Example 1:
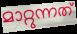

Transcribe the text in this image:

മാറ്റുന്നത്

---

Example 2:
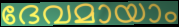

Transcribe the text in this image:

ദേവമായാം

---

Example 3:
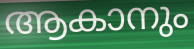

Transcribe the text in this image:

ആകാനും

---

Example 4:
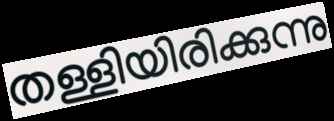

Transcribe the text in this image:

തള്ളിയിരിക്കുന്നു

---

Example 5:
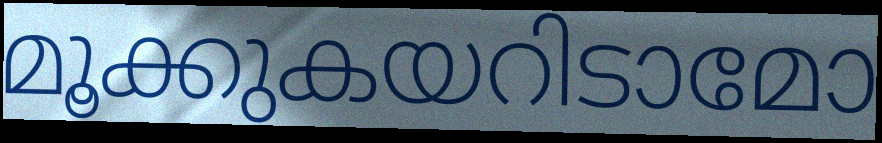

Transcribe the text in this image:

മൂക്കുകയറിടാമോ